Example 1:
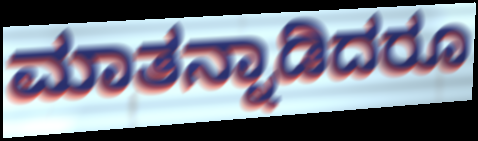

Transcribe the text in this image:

ಮಾತನ್ನಾಡಿದರೂ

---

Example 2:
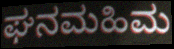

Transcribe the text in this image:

ಘನಮಹಿಮ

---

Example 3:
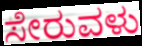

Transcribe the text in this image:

ಸೇರುವಳು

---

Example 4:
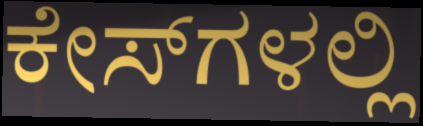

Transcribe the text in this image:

ಕೇಸ್‌ಗಳಲ್ಲಿ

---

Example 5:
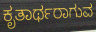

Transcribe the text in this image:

ಕೃತಾರ್ಥರಾಗುವ